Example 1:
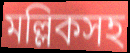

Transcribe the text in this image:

মল্লিকসহ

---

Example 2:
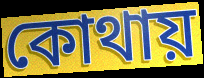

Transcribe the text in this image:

কোথায়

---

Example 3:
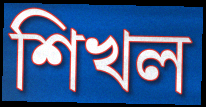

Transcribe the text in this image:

শিখল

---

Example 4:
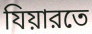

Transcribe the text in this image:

যিয়ারতে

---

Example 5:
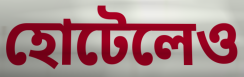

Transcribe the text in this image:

হোটেলেও